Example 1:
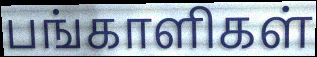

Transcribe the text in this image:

பங்காளிகள்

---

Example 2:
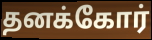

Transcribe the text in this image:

தனக்கோர்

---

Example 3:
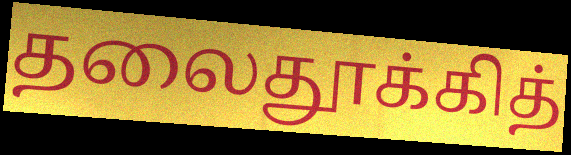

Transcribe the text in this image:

தலைதூக்கித்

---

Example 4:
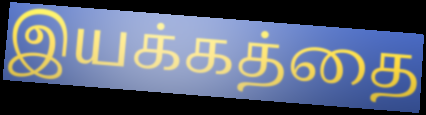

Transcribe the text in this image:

இயக்கத்தை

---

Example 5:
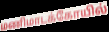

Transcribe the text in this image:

மணிமாடக்கோயில்